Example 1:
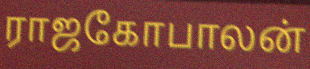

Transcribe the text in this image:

ராஜகோபாலன்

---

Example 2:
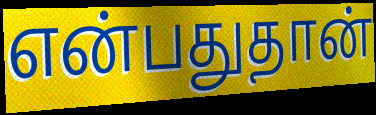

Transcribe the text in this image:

என்பதுதான்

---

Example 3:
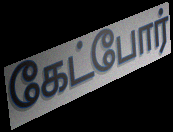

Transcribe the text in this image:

கேட்போர்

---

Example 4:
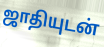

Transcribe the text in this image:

ஜாதியுடன்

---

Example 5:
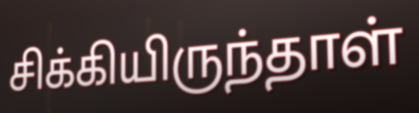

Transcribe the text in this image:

சிக்கியிருந்தாள்